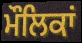
ਮੌਲਿਕਾਂ